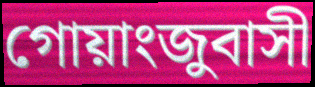
গোয়াংজুবাসী